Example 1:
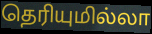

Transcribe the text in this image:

தெரியுமில்லா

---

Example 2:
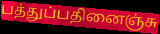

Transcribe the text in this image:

பத்துப்பதினைஞ்சு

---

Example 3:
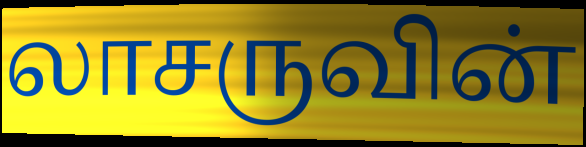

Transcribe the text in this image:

லாசருவின்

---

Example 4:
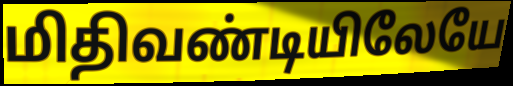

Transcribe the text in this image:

மிதிவண்டியிலேயே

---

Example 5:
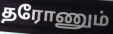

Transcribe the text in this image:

தரோணும்